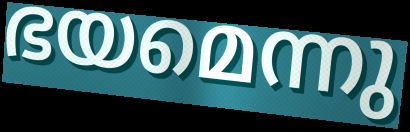
ഭയമെന്നു